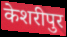
केशरीपुर